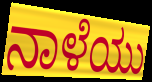
ನಾಳೆಯು